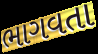
ભાગવતા